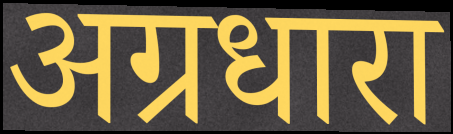
अग्रधारा